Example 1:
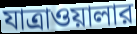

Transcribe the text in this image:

যাত্রাওয়ালার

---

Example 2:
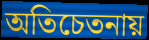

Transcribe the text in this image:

অতিচেতনায়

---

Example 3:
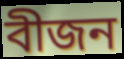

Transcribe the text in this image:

বীজন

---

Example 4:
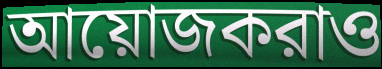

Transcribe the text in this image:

আয়োজকরাও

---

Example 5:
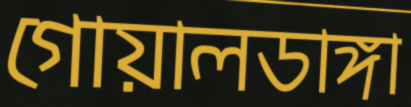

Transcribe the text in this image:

গোয়ালডাঙ্গা